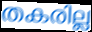
തകരില്ല